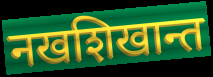
नखशिखान्त